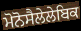
ਮੋਨੋਸੈਲੇਲੇਬਿਕ